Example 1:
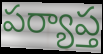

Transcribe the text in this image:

పర్యాప్త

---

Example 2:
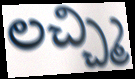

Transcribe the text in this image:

లచ్చ్మి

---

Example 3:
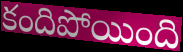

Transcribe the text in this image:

కందిపోయింది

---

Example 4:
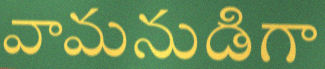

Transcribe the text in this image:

వామనుడిగా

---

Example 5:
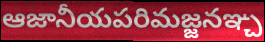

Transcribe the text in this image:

ఆజానీయపరిమజ్జనఞ్చ